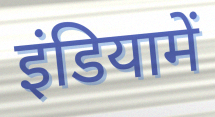
इंडियामें